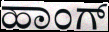
ಹಾಂಗ್